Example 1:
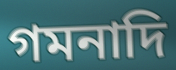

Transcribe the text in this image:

গমনাদি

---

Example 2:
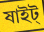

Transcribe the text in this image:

ষাইট্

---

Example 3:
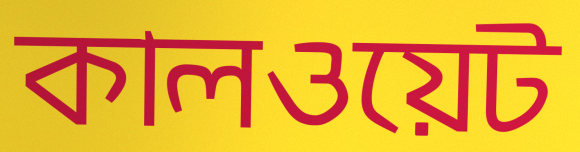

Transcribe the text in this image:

কালওয়েট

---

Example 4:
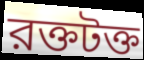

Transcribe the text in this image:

রক্তটক্ত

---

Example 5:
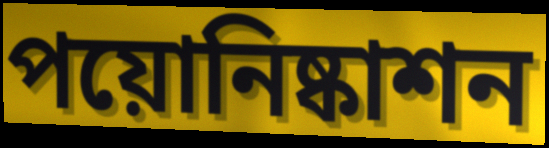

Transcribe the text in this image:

পয়োনিষ্কাশন